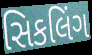
સિકલિંગ